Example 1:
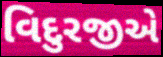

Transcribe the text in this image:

વિદુરજીએ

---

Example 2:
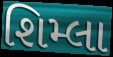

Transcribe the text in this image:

શિમ્લા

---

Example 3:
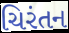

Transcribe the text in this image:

ચિરંતન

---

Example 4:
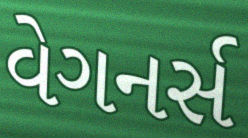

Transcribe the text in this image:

વેગનર્સ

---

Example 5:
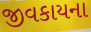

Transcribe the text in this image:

જીવકાયના